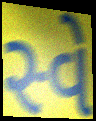
સ્વે